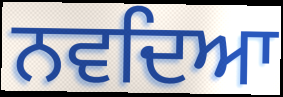
ਨਵਦਿਆ